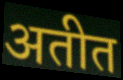
अतीत